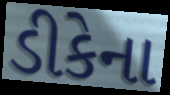
ડીકેના